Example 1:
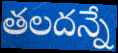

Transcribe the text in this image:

తలదన్నే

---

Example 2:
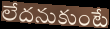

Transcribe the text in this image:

లేదనుకుంటే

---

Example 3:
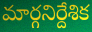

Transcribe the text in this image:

మార్గనిర్దేశిక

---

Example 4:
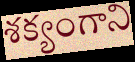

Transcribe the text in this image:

శక్యంగాని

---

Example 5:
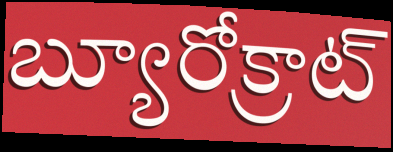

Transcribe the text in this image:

బ్యూరోక్రాట్